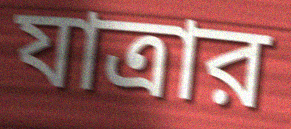
যাত্রার